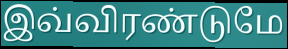
இவ்விரண்டுமே